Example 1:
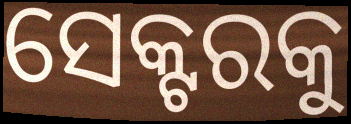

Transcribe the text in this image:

ସେକ୍ଟରକୁ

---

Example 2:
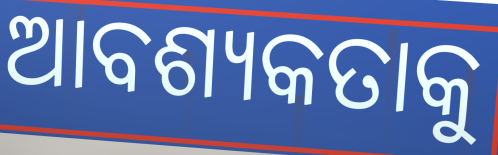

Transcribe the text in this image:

ଆବଶ୍ୟକତାକୁ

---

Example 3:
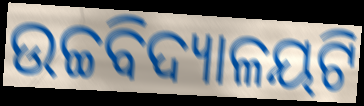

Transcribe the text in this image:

ଉଚ୍ଚବିଦ୍ୟାଳୟଟି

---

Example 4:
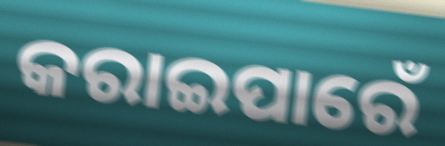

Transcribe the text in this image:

କରାଇପାରେଁ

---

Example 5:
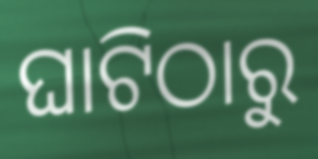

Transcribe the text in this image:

ଘାଟିଠାରୁ